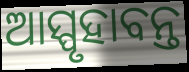
ଆସ୍ପୃହାବନ୍ତ